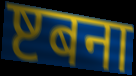
ष्टबना